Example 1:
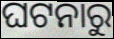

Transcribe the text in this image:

ଘଟନାରୁ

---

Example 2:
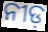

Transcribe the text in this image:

ନୀଡ଼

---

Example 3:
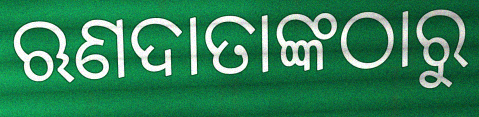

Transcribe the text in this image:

ଋଣଦାତାଙ୍କଠାରୁ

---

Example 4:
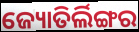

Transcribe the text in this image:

ଜ୍ୟୋତିର୍ଲିଙ୍ଗର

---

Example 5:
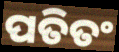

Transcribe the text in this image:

ପତିତଂ